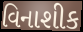
વિનાશીક